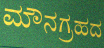
ಮೌನಗ್ರಹದ